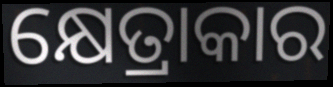
କ୍ଷେତ୍ରାକାର